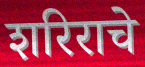
शरिराचे